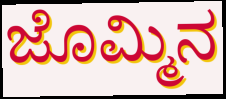
ಜೊಮ್ಮಿನ